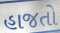
હાજતો